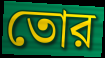
তোর